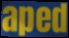
aped